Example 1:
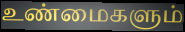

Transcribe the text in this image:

உண்மைகளும்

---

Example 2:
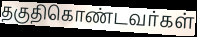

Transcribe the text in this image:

தகுதிகொண்டவர்கள்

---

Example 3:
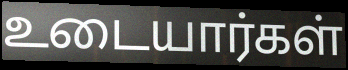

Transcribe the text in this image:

உடையார்கள்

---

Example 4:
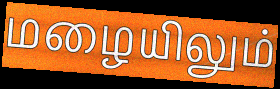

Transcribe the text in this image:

மழையிலும்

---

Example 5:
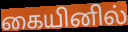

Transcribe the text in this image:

கையினில்